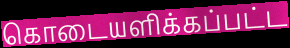
கொடையளிக்கப்பட்ட